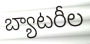
బ్యాటరీల